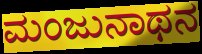
ಮಂಜುನಾಥನ